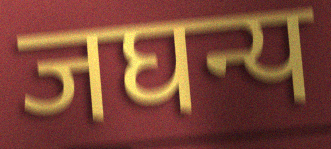
जघन्य